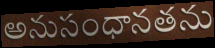
అనుసంధానతను